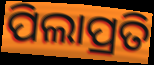
ପିଲାପ୍ରତି